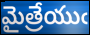
మైత్రేయుఁ